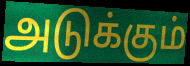
அடுக்கும்